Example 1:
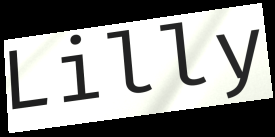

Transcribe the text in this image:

Lilly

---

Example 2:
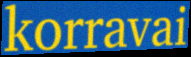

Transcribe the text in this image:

korravai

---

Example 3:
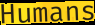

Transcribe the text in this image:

Humans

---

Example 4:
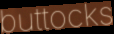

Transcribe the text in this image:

buttocks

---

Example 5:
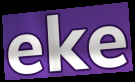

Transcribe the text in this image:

eke